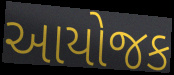
આયોજક